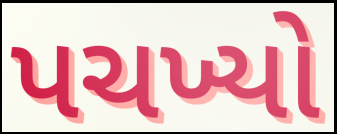
પચખ્યો